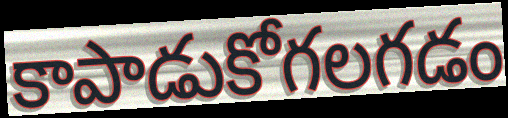
కాపాడుకోగలగడం